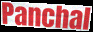
Panchal